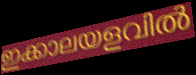
ഇക്കാലയളവിൽ